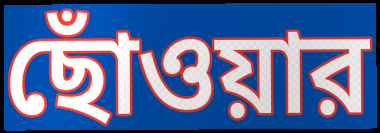
ছোঁওয়ার